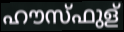
ഹൗസ്ഫുള്